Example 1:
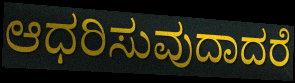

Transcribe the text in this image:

ಆಧರಿಸುವುದಾದರೆ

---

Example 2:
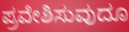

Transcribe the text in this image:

ಪ್ರವೇಶಿಸುವುದೂ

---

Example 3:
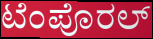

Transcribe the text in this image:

ಟೆಂಪೊರಲ್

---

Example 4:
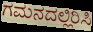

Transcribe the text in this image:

ಗಮನದಲ್ಲಿರಿಸಿ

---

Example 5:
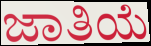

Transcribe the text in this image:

ಜಾತಿಯೆ